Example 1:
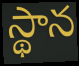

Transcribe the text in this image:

స్థాన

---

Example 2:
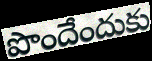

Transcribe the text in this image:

పొందేందుకు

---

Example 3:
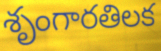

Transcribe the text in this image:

శృంగారతిలక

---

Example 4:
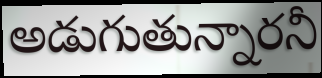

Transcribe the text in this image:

అడుగుతున్నారనీ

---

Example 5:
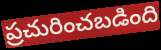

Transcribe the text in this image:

ప్రచురించబడింది